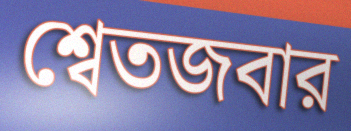
শ্বেতজবার